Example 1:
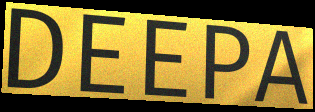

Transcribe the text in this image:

DEEPA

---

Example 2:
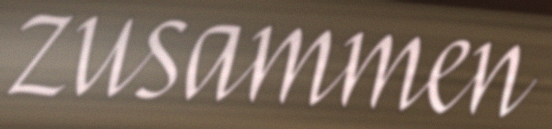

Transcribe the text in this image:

zusammen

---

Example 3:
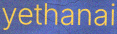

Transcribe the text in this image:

yethanai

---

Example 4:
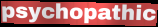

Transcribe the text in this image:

psychopathic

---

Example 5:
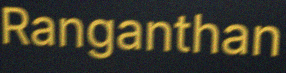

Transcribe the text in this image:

Ranganthan